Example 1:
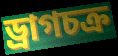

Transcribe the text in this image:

ড্রাগচক্র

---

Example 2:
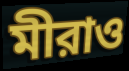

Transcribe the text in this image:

মীরাও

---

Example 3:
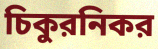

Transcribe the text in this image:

চিকুরনিকর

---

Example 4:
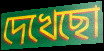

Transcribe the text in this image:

দেখেছো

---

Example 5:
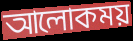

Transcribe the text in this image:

আলোকময়